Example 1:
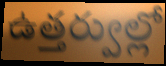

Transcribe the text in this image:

ఉత్తర్వుల్లో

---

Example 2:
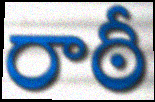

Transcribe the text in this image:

రాఠీ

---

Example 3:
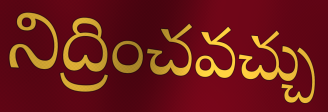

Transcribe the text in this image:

నిద్రించవచ్చు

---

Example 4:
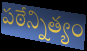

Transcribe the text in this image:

పఠేన్నిత్యం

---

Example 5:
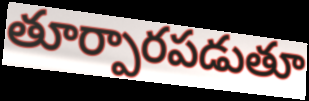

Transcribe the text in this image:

తూర్పారపడుతూ